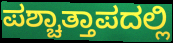
ಪಶ್ಚಾತ್ತಾಪದಲ್ಲಿ